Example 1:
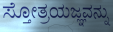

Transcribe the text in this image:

ಸ್ತೋತ್ರಯಜ್ಞವನ್ನು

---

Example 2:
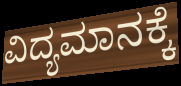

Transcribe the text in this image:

ವಿದ್ಯಮಾನಕ್ಕೆ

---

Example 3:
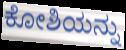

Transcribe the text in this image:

ಕೋಶಿಯನ್ನು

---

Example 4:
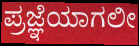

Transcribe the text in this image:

ಪ್ರಜ್ಞೆಯಾಗಲೀ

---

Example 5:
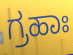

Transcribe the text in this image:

ಗ್ರಹಾಃ